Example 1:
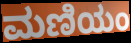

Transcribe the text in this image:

ಮಣಿಯಂ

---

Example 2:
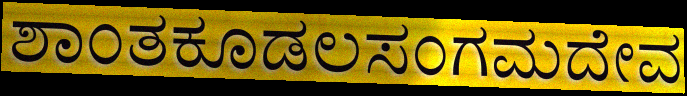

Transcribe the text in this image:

ಶಾಂತಕೂಡಲಸಂಗಮದೇವ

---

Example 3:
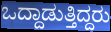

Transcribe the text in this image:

ಒದ್ದಾಡುತ್ತಿದ್ದರು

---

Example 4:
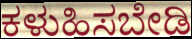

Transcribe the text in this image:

ಕಳುಹಿಸಬೇಡಿ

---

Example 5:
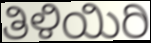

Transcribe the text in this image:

ತಿಳಿಯಿರಿ